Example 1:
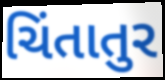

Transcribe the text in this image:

ચિંતાતુર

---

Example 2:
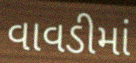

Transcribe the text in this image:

વાવડીમાં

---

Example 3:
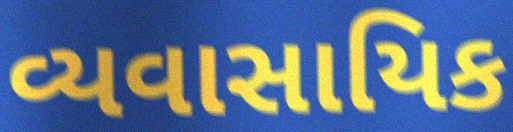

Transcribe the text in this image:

વ્યવાસાયિક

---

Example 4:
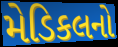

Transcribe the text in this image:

મેડિકલનો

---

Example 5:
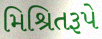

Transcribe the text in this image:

મિશ્રિતરૂપે